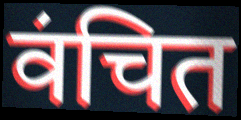
वंचित